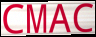
CMAC